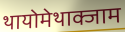
थायोमेथाक्जाम